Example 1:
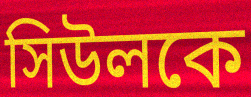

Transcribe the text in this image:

সিউলকে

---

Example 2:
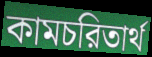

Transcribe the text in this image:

কামচরিতার্থ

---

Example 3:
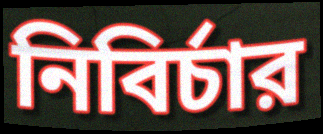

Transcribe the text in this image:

নিবির্চার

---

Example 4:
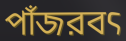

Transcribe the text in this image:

পাঁজরবৎ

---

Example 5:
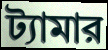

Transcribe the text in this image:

ট্যামার